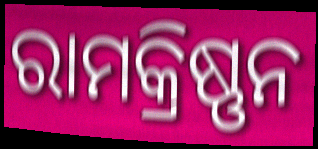
ରାମକ୍ରିଷ୍ଣନ